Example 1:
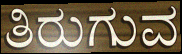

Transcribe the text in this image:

ತಿರುಗುವ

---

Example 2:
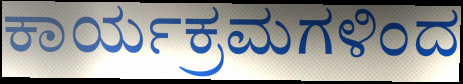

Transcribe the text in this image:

ಕಾರ್ಯಕ್ರಮಗಳಿಂದ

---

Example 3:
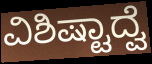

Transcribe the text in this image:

ವಿಶಿಷ್ಟಾದ್ವೆ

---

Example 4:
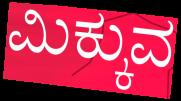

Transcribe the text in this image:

ಮಿಕ್ಕುವ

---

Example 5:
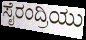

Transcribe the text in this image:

ಸೈರಂದ್ರಿಯು